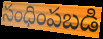
సంధింపబడి